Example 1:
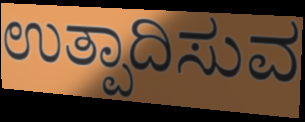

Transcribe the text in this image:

ಉತ್ಪಾದಿಸುವ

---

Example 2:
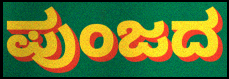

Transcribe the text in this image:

ಪುಂಜದ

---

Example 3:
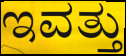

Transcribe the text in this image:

ಇವತ್ತು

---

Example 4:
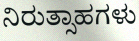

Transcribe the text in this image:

ನಿರುತ್ಸಾಹಗಳು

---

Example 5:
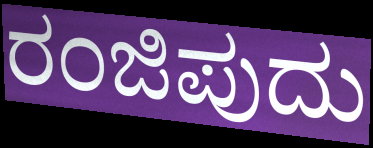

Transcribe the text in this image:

ರಂಜಿಪುದು